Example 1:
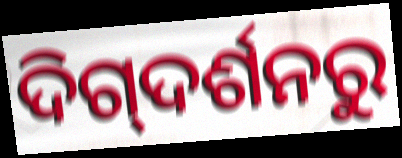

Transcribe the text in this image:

ଦିଗ୍‌ଦର୍ଶନରୁ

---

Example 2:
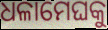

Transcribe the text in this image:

ଧଳାମେଘକୁ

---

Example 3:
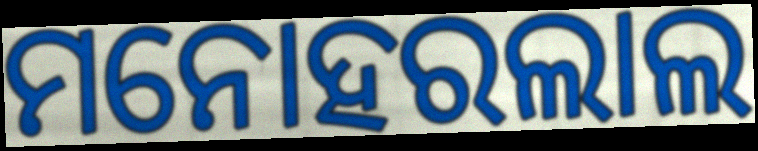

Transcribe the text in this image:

ମନୋହରଲାଲ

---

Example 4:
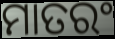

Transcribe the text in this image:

ମାତରଂ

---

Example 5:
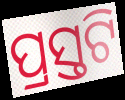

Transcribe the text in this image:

ପ୍ରସ୍ତଟି